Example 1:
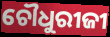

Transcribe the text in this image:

ଚୌଧୁରୀଜୀ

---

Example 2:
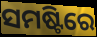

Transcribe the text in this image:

ସମଷ୍ଟିରେ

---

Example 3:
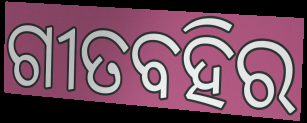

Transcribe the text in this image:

ଗୀତବହିର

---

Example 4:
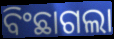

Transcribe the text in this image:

ବିଂଛାଗଲା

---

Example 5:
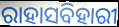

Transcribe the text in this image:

ରାହାସବିହାରୀ